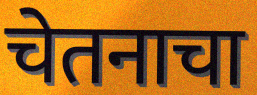
चेतनाचा